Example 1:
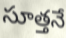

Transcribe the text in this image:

సూత్తనే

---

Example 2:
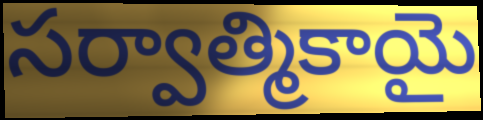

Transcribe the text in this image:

సర్వాత్మికాయై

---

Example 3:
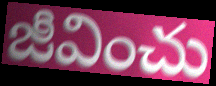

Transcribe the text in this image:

జీవించు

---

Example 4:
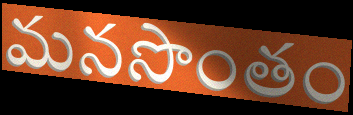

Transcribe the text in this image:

మనసొంతం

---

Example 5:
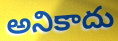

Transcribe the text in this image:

అనికాదు